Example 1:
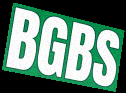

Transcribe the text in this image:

BGBS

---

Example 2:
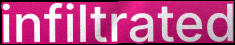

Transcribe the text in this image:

infiltrated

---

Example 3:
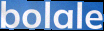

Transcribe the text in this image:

bolale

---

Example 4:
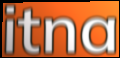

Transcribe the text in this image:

itna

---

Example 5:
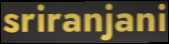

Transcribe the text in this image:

sriranjani